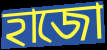
হাজো